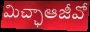
మిచ్ఛాఆజీవో